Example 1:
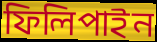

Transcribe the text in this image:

ফিলিপাইন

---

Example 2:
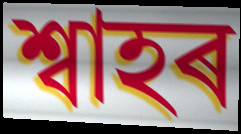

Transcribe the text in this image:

শ্বাহৰ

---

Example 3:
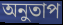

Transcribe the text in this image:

অনুতাপ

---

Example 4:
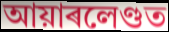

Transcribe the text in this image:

আয়াৰলেণ্ডত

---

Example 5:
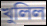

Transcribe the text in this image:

খুলিল